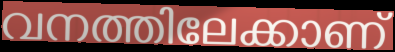
വനത്തിലേക്കാണ്